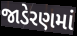
જાડેરણમાં